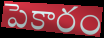
పెకారం